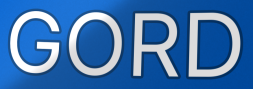
GORD